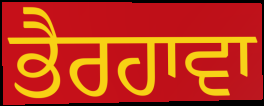
ਭੈਰਹਾਵਾ